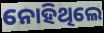
ନୋହିଥିଲେ